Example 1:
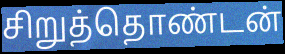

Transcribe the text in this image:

சிறுத்தொண்டன்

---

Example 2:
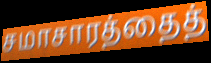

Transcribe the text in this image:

சமாசாரத்தைத்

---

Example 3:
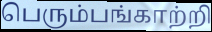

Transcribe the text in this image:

பெரும்பங்காற்றி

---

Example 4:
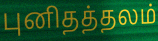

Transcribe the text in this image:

புனிதத்தலம்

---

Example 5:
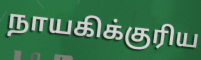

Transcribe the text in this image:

நாயகிக்குரிய